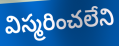
విస్మరించలేని